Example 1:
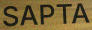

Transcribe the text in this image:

SAPTA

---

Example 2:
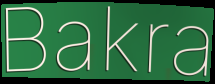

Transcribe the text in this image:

Bakra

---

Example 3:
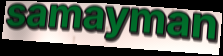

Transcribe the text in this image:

samayman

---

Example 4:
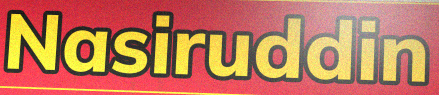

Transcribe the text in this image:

Nasiruddin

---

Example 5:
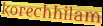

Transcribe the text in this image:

korechhilam